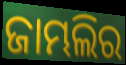
ଜାମ୍ଭଲିର